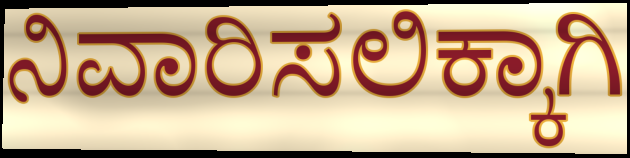
ನಿವಾರಿಸಲಿಕ್ಕಾಗಿ